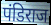
पंडिराज